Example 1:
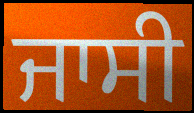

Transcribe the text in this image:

ਜਾਸੀ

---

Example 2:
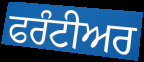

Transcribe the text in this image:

ਫਰੰਟੀਅਰ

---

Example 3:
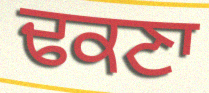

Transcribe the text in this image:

ਢਕਣਾ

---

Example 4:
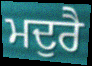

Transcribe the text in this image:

ਮਦੁਰੈ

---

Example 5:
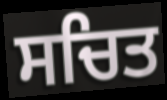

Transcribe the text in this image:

ਸਚਿਤ